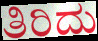
ತಿರಿದು